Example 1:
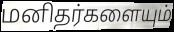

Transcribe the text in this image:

மனிதர்களையும்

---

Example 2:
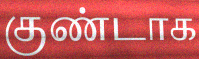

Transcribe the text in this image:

குண்டாக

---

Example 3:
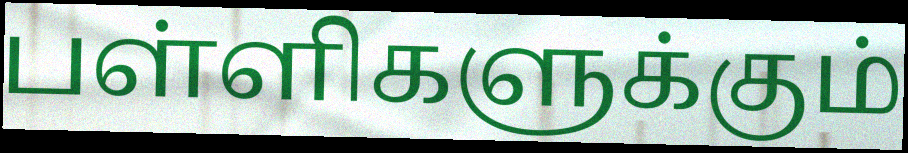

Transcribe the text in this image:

பள்ளிகளுக்கும்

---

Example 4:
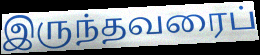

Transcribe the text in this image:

இருந்தவரைப்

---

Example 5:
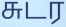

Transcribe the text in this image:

சுடர